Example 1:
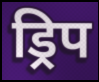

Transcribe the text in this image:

ड्रिप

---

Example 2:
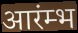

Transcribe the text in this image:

आरंम्भ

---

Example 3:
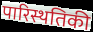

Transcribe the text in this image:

पारिस्थतिकी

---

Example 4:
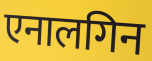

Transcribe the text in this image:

एनालगिन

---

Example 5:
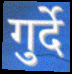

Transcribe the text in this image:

गुर्दे